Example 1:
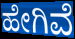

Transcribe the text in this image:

ಹೇಗಿವೆ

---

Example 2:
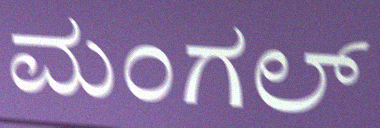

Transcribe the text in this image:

ಮಂಗಲ್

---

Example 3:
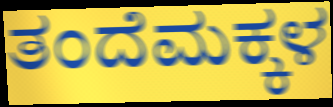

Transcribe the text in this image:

ತಂದೆಮಕ್ಕಳ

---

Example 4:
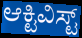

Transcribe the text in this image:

ಆಕ್ಟಿವಿಸ್ಟ್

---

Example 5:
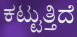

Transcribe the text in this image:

ಕಟ್ಟುತ್ತಿದೆ